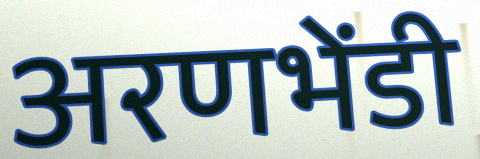
अरणभेंडी